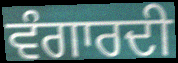
ਵੰਗਾਰਦੀ